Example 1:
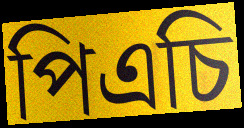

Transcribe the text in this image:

পিএচি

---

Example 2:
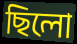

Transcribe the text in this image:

ছিলো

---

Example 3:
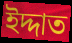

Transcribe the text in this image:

ইদ্দাত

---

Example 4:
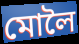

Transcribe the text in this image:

মোলৈ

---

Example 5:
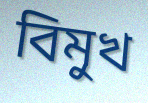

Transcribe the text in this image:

বিমুখ